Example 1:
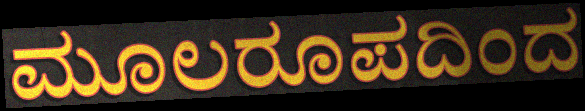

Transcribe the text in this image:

ಮೂಲರೂಪದಿಂದ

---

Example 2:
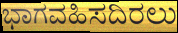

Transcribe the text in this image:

ಭಾಗವಹಿಸದಿರಲು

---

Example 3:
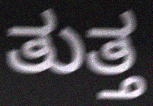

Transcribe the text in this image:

ತುತ್ತ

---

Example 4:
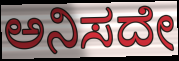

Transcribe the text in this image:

ಅನಿಸದೇ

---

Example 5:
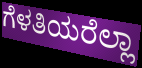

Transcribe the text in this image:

ಗೆಳತಿಯರೆಲ್ಲಾ